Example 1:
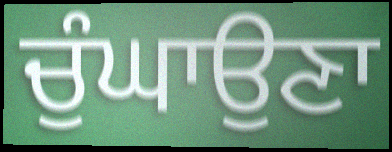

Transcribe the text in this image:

ਚੁੰਘਾਉਣਾ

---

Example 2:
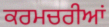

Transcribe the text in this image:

ਕਰਮਚਰੀਆਂ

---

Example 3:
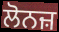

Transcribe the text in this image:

ਲੋਨਜ਼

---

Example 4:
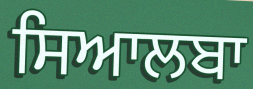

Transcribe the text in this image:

ਸਿਆਲਬਾ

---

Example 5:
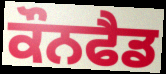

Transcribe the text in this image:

ਕੌਨਫੈਡ